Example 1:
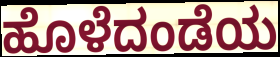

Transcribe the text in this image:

ಹೊಳೆದಂಡೆಯ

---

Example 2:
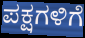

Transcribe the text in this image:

ಪಕ್ಷಗಳಿಗೆ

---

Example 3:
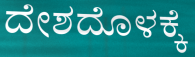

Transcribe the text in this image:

ದೇಶದೊಳಕ್ಕೆ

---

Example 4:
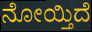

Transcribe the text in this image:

ನೋಯ್ತಿದೆ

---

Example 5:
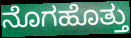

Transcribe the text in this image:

ನೊಗಹೊತ್ತು